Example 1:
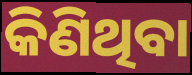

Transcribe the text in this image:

କିଣିଥିବା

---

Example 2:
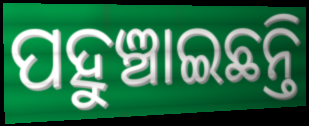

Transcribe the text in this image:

ପହୁଞ୍ଚାଇଛନ୍ତି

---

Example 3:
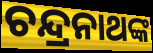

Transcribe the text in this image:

ଚନ୍ଦ୍ରନାଥଙ୍କ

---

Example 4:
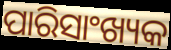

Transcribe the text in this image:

ପାରିସାଂଖ୍ୟକ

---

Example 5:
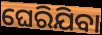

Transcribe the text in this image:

ଘେରିଯିବା